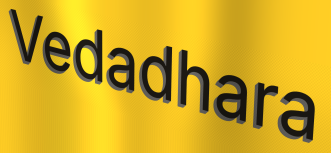
Vedadhara